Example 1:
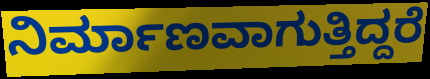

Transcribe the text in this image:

ನಿರ್ಮಾಣವಾಗುತ್ತಿದ್ದರೆ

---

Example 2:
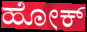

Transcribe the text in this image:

ಹೋಕ್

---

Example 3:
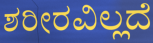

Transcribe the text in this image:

ಶರೀರವಿಲ್ಲದೆ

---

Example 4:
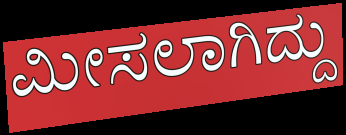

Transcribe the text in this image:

ಮೀಸಲಾಗಿದ್ದು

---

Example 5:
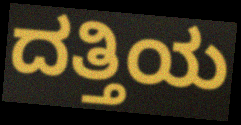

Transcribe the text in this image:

ದತ್ತಿಯ